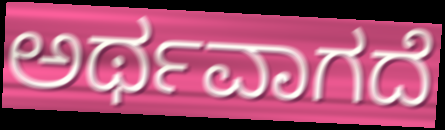
ಅರ್ಥವಾಗದೆ